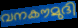
വനകൗമുദി